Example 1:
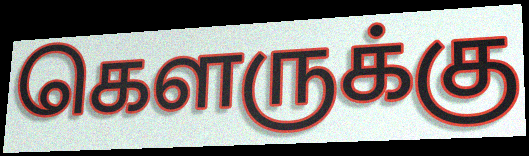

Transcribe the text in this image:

கௌருக்கு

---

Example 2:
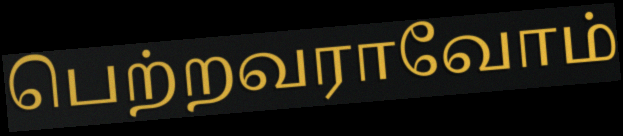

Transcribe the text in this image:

பெற்றவராவோம்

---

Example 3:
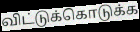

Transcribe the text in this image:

விட்டுக்கொடுக்க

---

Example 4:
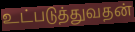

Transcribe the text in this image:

உட்படுத்துவதன்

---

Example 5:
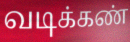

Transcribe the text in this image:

வடிக்கண்